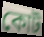
কোট